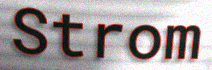
Strom